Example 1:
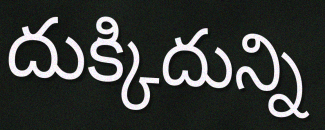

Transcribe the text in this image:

దుక్కిదున్ని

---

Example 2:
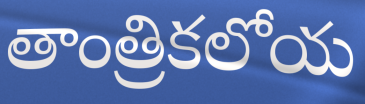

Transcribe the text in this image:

తాంత్రికలోయ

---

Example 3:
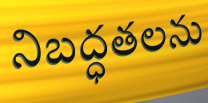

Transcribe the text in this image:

నిబద్ధతలను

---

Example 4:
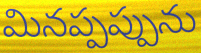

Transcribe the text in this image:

మినప్పప్పును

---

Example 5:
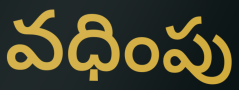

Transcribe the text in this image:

వధింపు